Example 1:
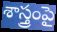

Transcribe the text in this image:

శాస్త్రంపై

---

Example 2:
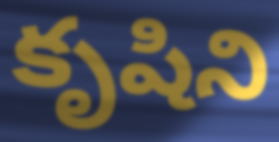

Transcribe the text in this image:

కృషిని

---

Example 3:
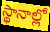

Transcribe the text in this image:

స్థానాల్లో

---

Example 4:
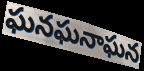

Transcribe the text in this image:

ఘనఘనాఘన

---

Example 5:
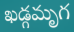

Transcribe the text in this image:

ఖడ్గమృగ